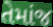
તેમાંજ